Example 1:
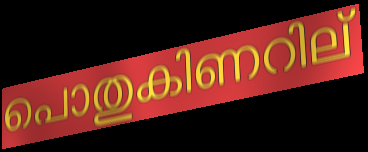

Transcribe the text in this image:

പൊതുകിണറില്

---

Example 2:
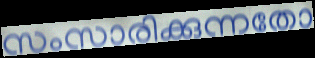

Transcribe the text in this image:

സംസാരിക്കുന്നതോ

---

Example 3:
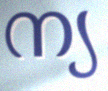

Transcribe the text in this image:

ന്യ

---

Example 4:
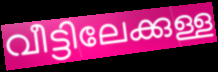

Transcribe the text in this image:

വീട്ടിലേക്കുള്ള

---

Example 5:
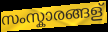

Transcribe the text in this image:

സംസ്കാരങ്ങള്